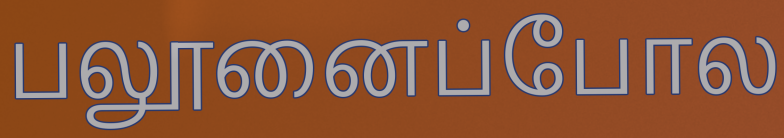
பலூனைப்போல